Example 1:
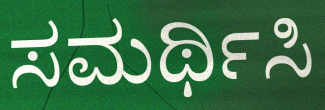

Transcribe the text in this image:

ಸಮರ್ಥಿಸಿ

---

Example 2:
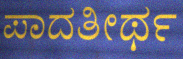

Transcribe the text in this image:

ಪಾದತೀರ್ಥ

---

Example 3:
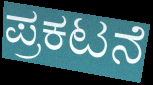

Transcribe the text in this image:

ಪ್ರಕಟನೆ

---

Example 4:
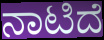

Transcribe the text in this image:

ನಾಟಿದೆ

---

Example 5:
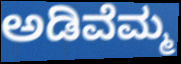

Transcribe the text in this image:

ಅಡಿವೆಮ್ಮ